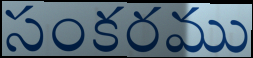
సంకరము